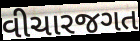
વીચારજગત